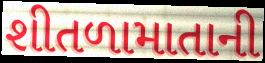
શીતળામાતાની